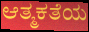
ಆತ್ಮಕತೆಯ